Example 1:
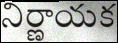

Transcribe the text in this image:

నిర్ణాయక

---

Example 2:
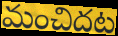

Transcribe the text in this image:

మంచిదట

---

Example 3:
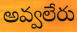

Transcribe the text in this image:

అవ్వలేరు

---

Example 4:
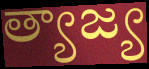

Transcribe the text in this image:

త్యాజ్య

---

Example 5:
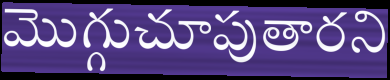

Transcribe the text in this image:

మొగ్గుచూపుతారని